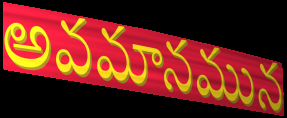
అవమానమున